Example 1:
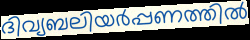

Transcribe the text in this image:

ദിവ്യബലിയർപ്പണത്തിൽ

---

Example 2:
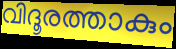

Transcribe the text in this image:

വിദൂരത്താകും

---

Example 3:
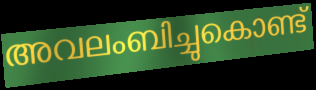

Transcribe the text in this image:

അവലംബിച്ചുകൊണ്ട്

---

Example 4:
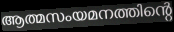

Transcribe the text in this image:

ആത്മസംയമനത്തിന്റെ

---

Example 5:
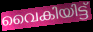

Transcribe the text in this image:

വൈകിയിട്ട്